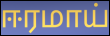
ஈரமாய்